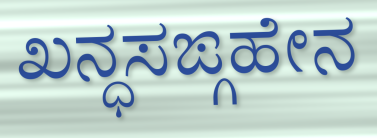
ಖನ್ಧಸಙ್ಗಹೇನ